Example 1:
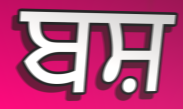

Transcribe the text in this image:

ਬਸ਼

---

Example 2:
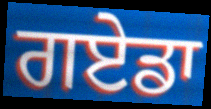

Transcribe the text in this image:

ਗਏਡਾ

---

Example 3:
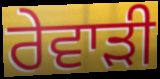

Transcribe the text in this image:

ਰੇਵਾਡ਼ੀ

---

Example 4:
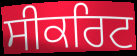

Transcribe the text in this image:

ਸੀਕਰਿਟ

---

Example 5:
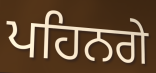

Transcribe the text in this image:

ਪਹਿਨਗੇ